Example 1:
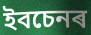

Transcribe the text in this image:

ইবচেনৰ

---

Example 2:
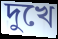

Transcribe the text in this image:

দুখে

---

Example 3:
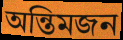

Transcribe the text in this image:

অন্তিমজন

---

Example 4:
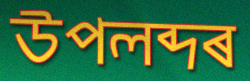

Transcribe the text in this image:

উপলব্দৰ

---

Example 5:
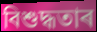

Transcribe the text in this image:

বিশুদ্ধতাৰ